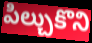
పిల్చుకొని